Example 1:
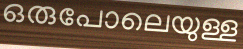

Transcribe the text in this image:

ഒരുപോലെയുള്ള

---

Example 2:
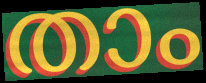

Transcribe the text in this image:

താം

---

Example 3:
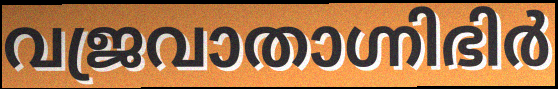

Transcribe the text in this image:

വജ്രവാതാഗ്നിഭിർ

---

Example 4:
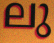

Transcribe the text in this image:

ലു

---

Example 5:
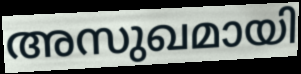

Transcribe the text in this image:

അസുഖമായി